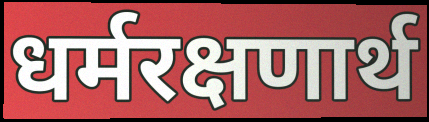
धर्मरक्षणार्थ